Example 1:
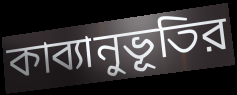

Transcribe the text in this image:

কাব্যানুভূতির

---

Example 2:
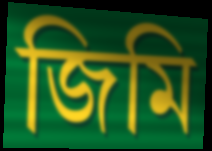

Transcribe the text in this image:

জিমি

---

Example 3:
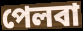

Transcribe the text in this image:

পেলবা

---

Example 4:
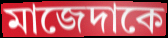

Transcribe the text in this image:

মাজেদাকে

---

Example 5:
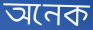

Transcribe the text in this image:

অনেক